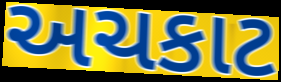
અચકાટ